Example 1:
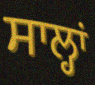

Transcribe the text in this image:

ਸਾਲ੍ਹਾਂ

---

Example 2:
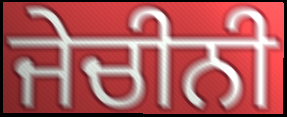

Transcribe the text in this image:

ਜੇਚੀਨੀ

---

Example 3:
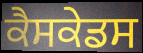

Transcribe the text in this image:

ਕੈਸਕੇਡਸ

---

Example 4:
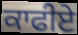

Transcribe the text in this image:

ਕਾਫੀਏ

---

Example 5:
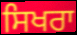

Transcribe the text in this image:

ਸਿਖਰਾ